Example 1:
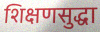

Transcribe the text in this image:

शिक्षणसुद्धा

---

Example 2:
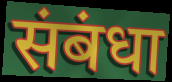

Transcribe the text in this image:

संबंधा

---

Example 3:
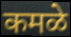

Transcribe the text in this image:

कमळे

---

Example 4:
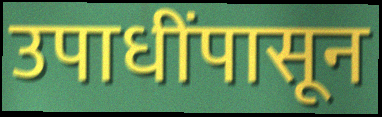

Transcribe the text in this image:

उपाधींपासून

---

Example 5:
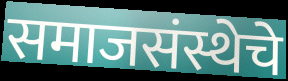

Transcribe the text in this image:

समाजसंस्थेचे